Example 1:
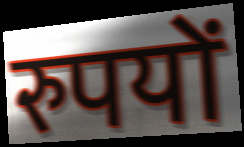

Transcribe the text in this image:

रुपयों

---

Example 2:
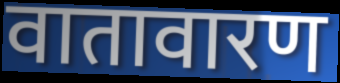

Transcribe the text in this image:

वातावारण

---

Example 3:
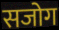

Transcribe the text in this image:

सजोग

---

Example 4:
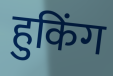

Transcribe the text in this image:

हुकिंग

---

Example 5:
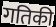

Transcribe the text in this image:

गतिकी